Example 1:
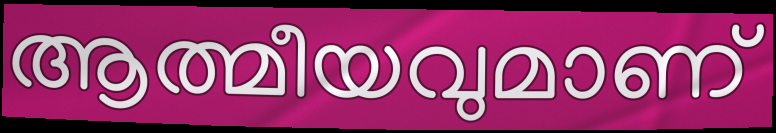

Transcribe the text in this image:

ആത്മീയവുമാണ്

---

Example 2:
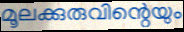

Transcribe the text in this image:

മൂലക്കുരുവിന്റെയും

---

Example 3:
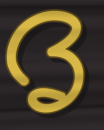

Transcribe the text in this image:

ദൃ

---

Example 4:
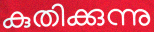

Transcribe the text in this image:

കുതിക്കുന്നു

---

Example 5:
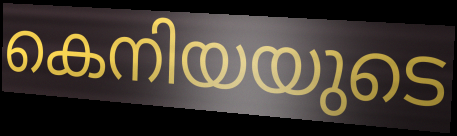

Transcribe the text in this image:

കെനിയയുടെ